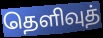
தெளிவுத்